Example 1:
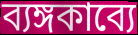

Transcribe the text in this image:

ব্যঙ্গকাব্যে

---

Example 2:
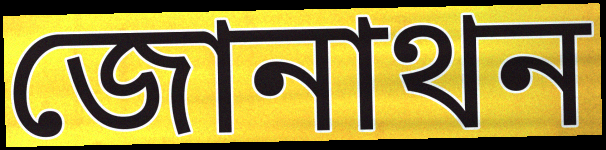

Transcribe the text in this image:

জোনাথন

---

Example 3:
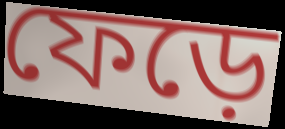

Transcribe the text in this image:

ফেড়ে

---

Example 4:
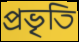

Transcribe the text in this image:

প্রভৃতি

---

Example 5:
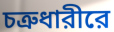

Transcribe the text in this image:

চত্রুধারীরে